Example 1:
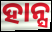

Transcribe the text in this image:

ହାନ୍ସ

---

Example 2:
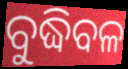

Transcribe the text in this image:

ବୁଦ୍ଧିବଳ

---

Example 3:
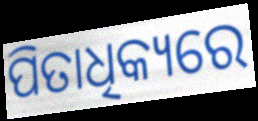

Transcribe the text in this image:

ପିତାଧିକ୍ୟରେ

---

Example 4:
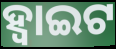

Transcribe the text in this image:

ହ୍ବାଇଟ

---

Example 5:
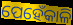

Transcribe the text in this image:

ପେହେଁକାଳି